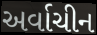
અર્વાચીન